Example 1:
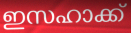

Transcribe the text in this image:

ഇസഹാക്ക്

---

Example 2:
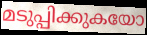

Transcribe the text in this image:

മടുപ്പിക്കുകയോ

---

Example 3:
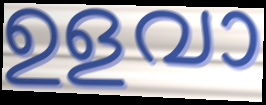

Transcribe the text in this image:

ഉളവാ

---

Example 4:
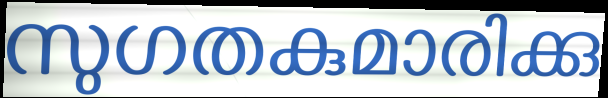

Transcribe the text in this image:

സുഗതകുമാരിക്കു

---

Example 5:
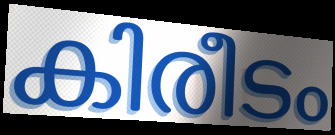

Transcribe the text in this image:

കിരീടം